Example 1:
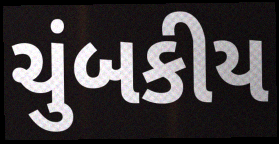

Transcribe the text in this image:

ચુંબકીય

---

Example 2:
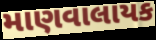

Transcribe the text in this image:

માણવાલાયક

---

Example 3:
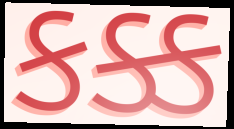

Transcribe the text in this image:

કક્ક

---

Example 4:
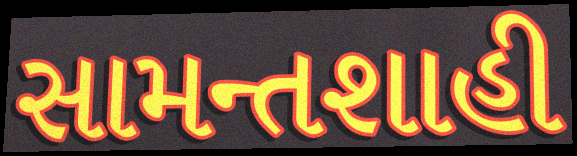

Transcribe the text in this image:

સામન્તશાહી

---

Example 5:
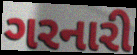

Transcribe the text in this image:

ગરનારી